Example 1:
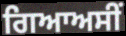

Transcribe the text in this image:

ਗਿਆਅਸੀਂ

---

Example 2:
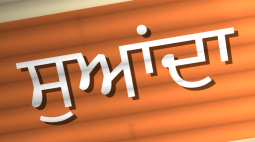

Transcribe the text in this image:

ਸੁਆਂਦਾ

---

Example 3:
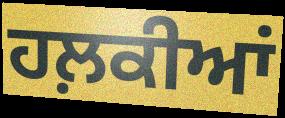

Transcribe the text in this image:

ਹਲ਼ਕੀਆਂ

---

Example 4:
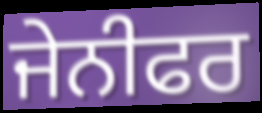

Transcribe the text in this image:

ਜੇਨੀਫਰ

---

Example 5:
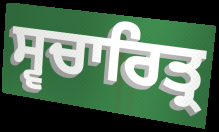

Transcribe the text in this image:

ਸ੍ਵਚਾਰਿਤ੍ਰ